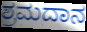
ಶ್ರಮದಾನ